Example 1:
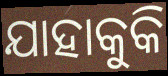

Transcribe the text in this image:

ଯାହାକୁକି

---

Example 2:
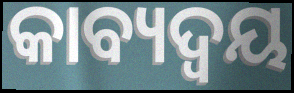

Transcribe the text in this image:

କାବ୍ୟଦ୍ୱୟ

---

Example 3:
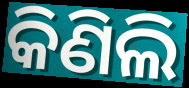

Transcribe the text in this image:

କିଣିଲି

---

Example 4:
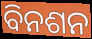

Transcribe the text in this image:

ବିନଶନ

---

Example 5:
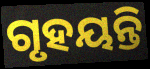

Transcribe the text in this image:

ଗୃହୟନ୍ତି